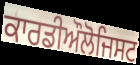
ਕਾਰਡੀਔਲੋਜਿਸਟ